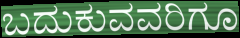
ಬದುಕುವವರಿಗೂ